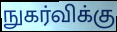
நுகர்விக்கு